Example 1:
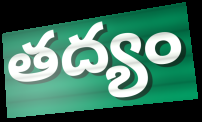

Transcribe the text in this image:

తద్యం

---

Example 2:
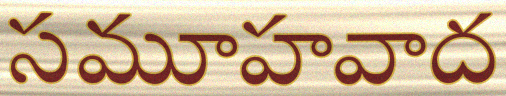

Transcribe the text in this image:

సమూహవాద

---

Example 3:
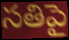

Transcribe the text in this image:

సతిపై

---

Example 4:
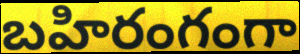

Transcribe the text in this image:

బహిరంగంగా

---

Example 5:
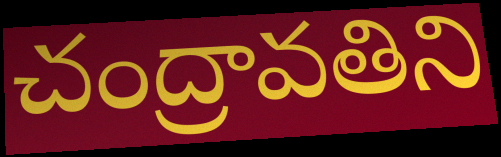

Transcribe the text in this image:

చంద్రావతిని